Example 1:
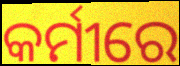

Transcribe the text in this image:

କର୍ମୀରେ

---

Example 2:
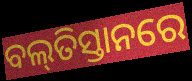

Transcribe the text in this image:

ବଲ୍‌ତିସ୍ତାନରେ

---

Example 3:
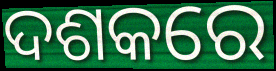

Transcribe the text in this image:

ଦଶକରେ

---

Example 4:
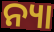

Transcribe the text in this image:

ନ୍ୟା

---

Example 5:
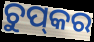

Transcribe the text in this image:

ଚୁପ୍‌କର